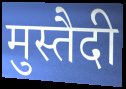
मुस्तैदी